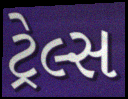
ટ્રેલ્સ